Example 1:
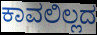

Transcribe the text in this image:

ಕಾವಲಿಲ್ಲದ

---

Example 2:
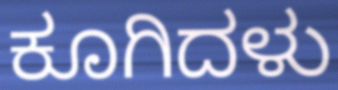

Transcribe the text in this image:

ಕೂಗಿದಳು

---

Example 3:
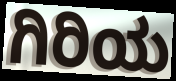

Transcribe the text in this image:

ಗಿರಿಯ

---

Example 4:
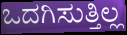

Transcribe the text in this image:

ಒದಗಿಸುತ್ತಿಲ್ಲ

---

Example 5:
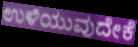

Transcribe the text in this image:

ಉಳಿಯುವುದೇಕೆ